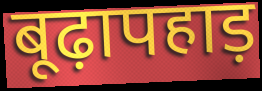
बूढ़ापहाड़